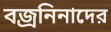
বজ্রনিনাদের